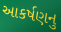
આકર્ષણનુ